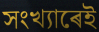
সংখ্যাৰেই